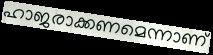
ഹാജരാക്കണമെന്നാണ്